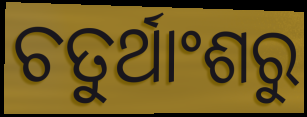
ଚତୁର୍ଥାଂଶରୁ